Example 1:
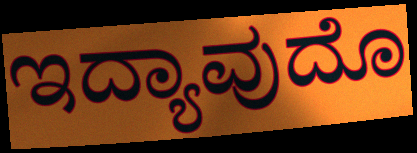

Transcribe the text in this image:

ಇದ್ಯಾವುದೊ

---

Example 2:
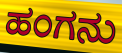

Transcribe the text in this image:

ಹಂಗನು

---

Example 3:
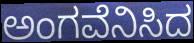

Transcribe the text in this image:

ಅಂಗವೆನಿಸಿದ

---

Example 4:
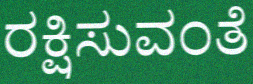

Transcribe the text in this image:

ರಕ್ಷಿಸುವಂತೆ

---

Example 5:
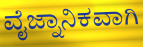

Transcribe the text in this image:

ವೈಜ್ನಾನಿಕವಾಗಿ